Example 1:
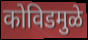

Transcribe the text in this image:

कोविडमुळे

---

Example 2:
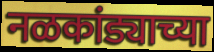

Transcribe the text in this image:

नळकांड्याच्या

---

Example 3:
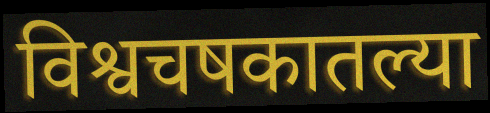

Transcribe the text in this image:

विश्वचषकातल्या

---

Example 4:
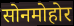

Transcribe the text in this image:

सोनमोहोर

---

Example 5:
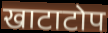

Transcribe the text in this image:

खाटाटोप